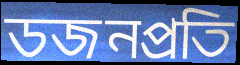
ডজনপ্রতি